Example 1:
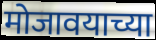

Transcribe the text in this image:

मोजावयाच्या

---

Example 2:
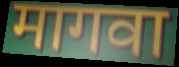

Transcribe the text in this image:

मागवा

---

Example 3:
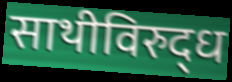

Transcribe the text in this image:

साथीविरुद्ध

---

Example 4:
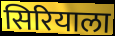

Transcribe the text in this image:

सिरियाला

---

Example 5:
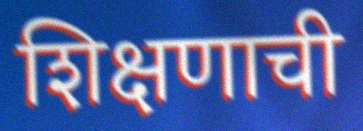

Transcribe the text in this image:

शिक्षणाची